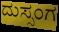
ದುಸ್ಸಂಗ